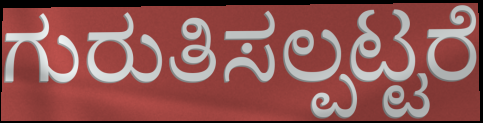
ಗುರುತಿಸಲ್ಪಟ್ಟರೆ